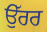
ਉੱਰਰ